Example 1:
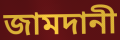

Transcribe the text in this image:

জামদানী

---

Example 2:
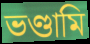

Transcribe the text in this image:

ভণ্ডামি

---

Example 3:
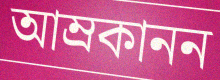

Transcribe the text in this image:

আম্রকানন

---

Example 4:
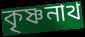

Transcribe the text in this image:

কৃষ্ণনাথ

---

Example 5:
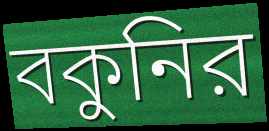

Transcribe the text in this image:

বকুনির